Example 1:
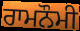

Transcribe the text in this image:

ਰਾਮਨੌਮੀ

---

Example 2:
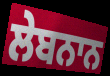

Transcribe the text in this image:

ਲੇਬਨਾਨ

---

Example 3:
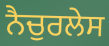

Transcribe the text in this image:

ਨੈਚੁਰਲੇਸ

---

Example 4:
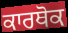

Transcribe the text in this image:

ਕਾਰਥੋਕ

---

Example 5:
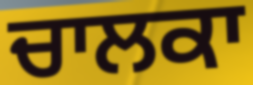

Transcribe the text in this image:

ਚਾਲਕਾ